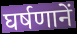
घर्षणानें